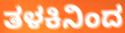
ತಳಕಿನಿಂದ